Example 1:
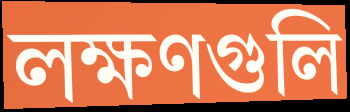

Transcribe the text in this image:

লক্ষণগুলি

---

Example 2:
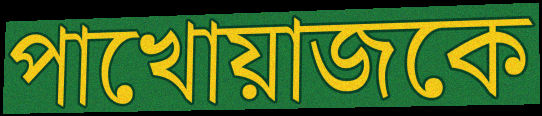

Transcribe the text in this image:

পাখোয়াজকে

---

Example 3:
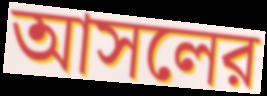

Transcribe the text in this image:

আসলের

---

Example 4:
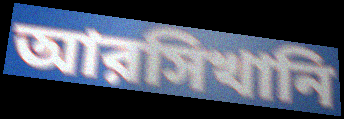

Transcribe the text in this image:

আরসিখানি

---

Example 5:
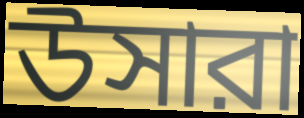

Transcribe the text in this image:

উসারা